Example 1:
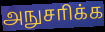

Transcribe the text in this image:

அநுசரிக்க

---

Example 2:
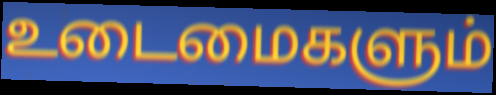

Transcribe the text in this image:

உடைமைகளும்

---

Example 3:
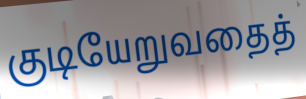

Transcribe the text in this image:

குடியேறுவதைத்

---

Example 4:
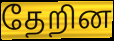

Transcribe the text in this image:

தேறின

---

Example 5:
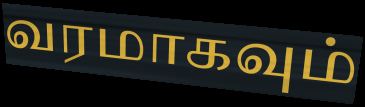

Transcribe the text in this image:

வரமாகவும்